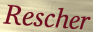
Rescher